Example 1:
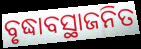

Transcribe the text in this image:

ବୃଦ୍ଧାବସ୍ଥାଜନିତ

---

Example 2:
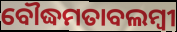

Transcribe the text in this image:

ବୌଦ୍ଧମତାବଲମ୍ବୀ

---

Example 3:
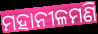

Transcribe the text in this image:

ମହାନୀଳମଣି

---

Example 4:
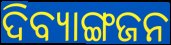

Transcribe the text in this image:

ଦିବ୍ୟାଙ୍ଗଜନ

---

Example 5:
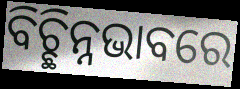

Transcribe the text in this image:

ବିଚ୍ଛିନ୍ନଭାବରେ